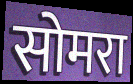
सोमरा